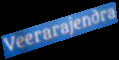
Veerarajendra